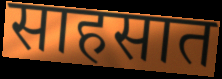
साहसात